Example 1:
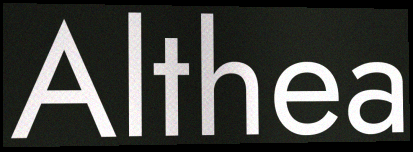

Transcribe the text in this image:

Althea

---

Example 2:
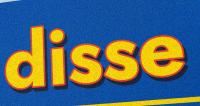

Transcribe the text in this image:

disse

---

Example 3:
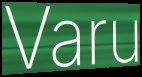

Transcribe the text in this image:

Varu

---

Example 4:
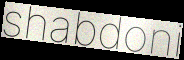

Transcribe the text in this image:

shabdoni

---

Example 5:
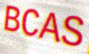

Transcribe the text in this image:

BCAS